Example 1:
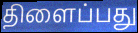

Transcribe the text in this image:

திளைப்பது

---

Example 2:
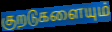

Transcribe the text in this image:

குறடுகளையும்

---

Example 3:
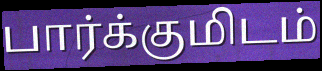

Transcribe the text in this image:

பார்க்குமிடம்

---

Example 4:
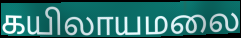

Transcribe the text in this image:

கயிலாயமலை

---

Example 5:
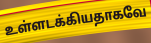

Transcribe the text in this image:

உள்ளடக்கியதாகவே